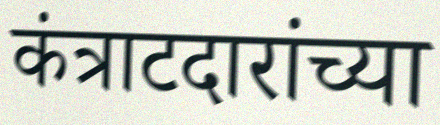
कंत्राटदारांच्या